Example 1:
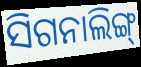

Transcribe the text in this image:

ସିଗନାଲିଙ୍ଗ୍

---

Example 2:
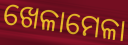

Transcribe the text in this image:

ଖେଳାମେଳା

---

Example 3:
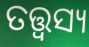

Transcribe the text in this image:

ତତ୍ତ୍ୱସ୍ୟ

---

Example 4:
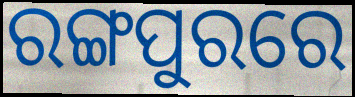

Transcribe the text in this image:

ରଙ୍ଗପୁରରେ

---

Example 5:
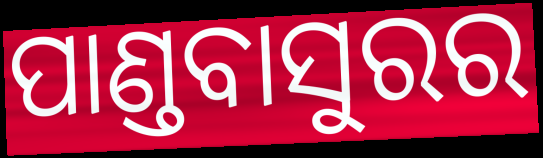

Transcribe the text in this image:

ପାଣ୍ଡବାସୁରର